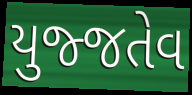
યુજ્જતેવ